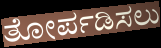
ತೋರ್ಪಡಿಸಲು